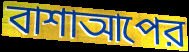
বাশাআপের